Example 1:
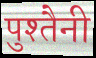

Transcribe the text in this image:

पुश्तैनी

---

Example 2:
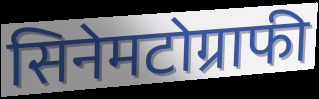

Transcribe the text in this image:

सिनेमटोग्राफी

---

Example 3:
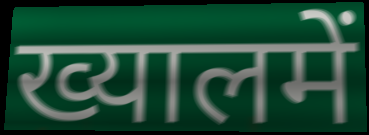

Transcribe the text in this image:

ख्यालमें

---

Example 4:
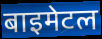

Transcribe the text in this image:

बाइमेटल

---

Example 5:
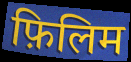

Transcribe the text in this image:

फ़िलिम